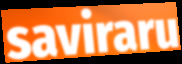
saviraru